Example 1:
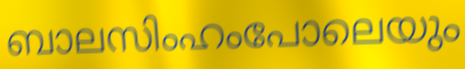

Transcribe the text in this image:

ബാലസിംഹംപോലെയും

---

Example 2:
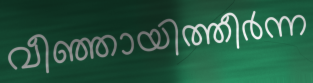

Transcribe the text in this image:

വീഞ്ഞായിത്തീർന്ന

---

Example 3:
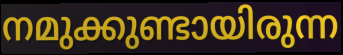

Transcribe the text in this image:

നമുക്കുണ്ടായിരുന്ന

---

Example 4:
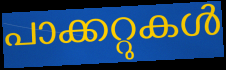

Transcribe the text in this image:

പാക്കറ്റുകൾ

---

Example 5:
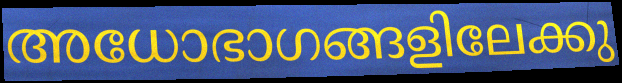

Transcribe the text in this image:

അധോഭാഗങ്ങളിലേക്കു